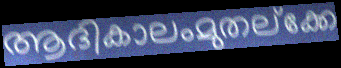
ആദികാലംമുതല്ക്കേ